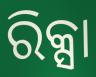
ରିକ୍ସା